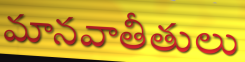
మానవాతీతులు